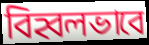
বিহ্বলভাবে